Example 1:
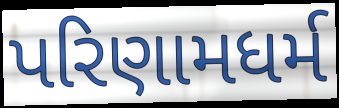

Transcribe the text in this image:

પરિણામધર્મ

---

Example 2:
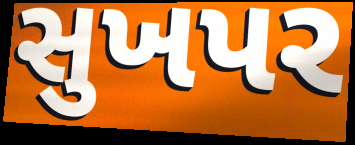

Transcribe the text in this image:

સુખપર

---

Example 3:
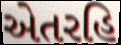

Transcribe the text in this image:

એતરહિ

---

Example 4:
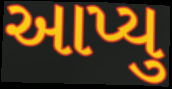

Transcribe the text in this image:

આપ્યુ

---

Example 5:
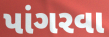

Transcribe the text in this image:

પાંગરવા